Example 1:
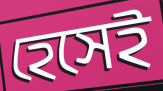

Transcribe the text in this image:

হেসেই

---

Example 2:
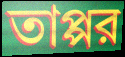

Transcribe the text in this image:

তাপ্পর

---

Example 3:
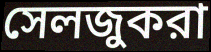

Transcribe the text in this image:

সেলজুকরা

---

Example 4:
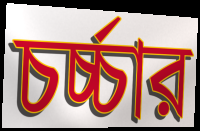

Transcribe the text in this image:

চর্চ্চার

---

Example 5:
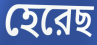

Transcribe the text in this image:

হেরেছ